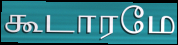
கூடாரமே